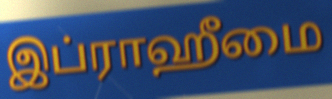
இப்ராஹீமை